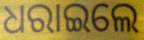
ଧରାଇଲେ